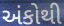
અંકોથી